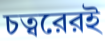
চত্বরেরই